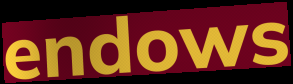
endows